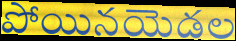
పోయినయెడల